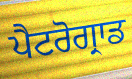
ਪੈਟਰੋਗ੍ਰਾਡ